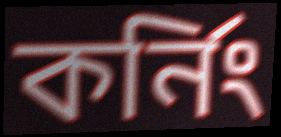
কর্নিং